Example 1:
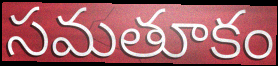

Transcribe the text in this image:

సమతూకం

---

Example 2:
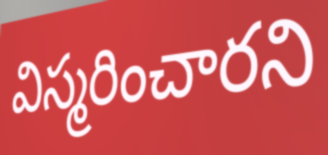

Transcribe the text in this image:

విస్మరించారని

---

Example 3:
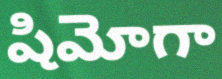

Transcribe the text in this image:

షిమోగా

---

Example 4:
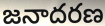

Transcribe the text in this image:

జనాదరణ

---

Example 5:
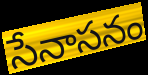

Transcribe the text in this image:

సేనాసనం